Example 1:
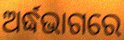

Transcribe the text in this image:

ଅର୍ଦ୍ଧଭାଗରେ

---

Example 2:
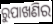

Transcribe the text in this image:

ରୁପାଖଣିର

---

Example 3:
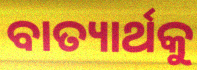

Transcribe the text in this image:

ବାତ୍ୟାର୍ଥକୁ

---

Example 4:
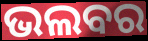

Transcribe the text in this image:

ଭଲବର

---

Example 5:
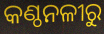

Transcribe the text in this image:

କଣ୍ଠନଳୀରୁ